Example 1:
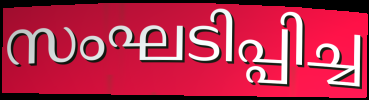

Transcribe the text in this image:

സംഘടിപ്പിച്ച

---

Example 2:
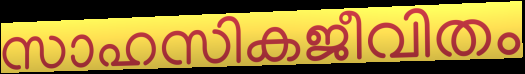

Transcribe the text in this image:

സാഹസികജീവിതം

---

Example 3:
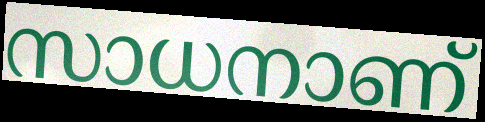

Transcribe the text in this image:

സാധനാണ്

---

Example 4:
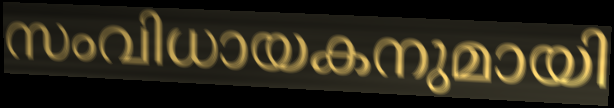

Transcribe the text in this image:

സംവിധായകനുമായി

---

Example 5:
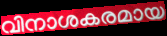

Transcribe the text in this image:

വിനാശകരമായ